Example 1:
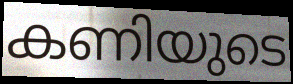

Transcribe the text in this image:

കണിയുടെ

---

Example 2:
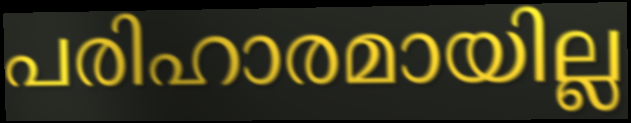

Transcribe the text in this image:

പരിഹാരമായില്ല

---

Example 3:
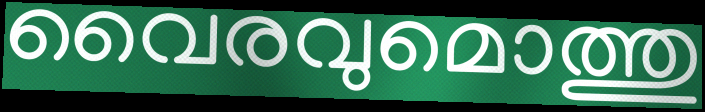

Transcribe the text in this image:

വൈരവുമൊത്തു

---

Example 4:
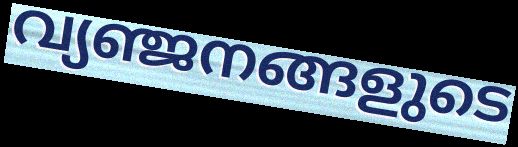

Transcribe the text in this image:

വ്യഞ്ജനങ്ങളുടെ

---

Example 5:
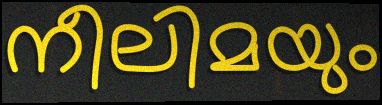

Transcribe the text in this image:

നീലിമയും